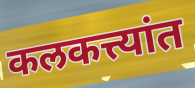
कलकत्त्यांत